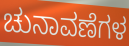
ಚುನಾವಣೆಗಳ